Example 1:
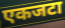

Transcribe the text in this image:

एकजटा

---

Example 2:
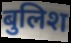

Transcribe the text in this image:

बुलिश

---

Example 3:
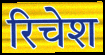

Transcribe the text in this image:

रिचेश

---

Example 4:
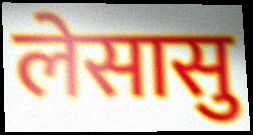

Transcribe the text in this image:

लेसासु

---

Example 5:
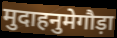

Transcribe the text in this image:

मुदाहनुमेगौड़ा